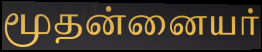
மூதன்னையர்